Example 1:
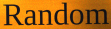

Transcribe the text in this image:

Random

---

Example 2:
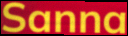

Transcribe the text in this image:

Sanna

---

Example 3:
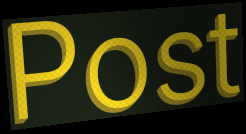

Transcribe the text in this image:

Post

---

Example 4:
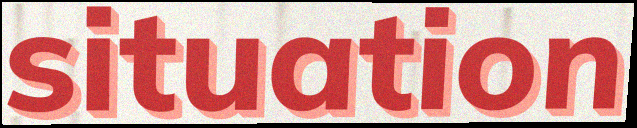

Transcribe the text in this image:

situation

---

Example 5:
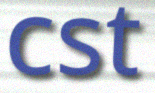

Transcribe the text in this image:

cst